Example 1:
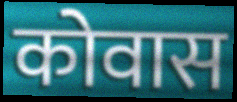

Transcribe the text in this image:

कोवास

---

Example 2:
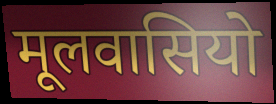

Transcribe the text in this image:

मूलवासियो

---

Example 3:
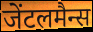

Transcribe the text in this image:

जेंटलमैन्स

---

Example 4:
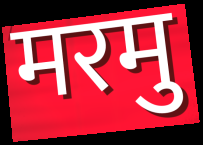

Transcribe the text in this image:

मरमु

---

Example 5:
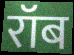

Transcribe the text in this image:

रॉब